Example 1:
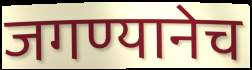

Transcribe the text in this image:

जगण्यानेच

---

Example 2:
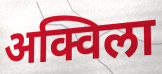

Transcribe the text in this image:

अक्विला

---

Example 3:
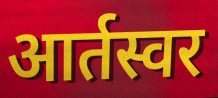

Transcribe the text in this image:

आर्तस्वर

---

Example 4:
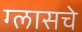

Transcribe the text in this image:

ग्लासचे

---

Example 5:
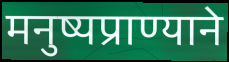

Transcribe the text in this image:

मनुष्यप्राण्याने